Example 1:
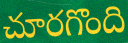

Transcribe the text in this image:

చూరగొంది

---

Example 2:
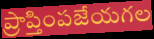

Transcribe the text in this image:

ప్రాప్తింపజేయగల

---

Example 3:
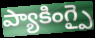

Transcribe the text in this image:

ప్యాకింగ్పై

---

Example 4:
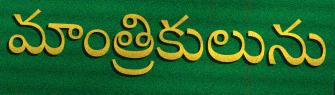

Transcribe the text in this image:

మాంత్రికులును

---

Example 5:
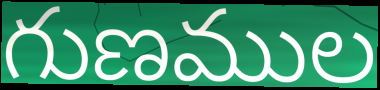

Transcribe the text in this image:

గుణముల